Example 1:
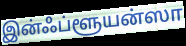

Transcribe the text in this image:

இன்ஃப்ளூயன்ஸா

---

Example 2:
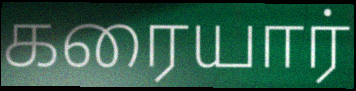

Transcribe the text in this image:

கரையார்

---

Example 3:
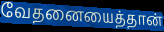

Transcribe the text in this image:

வேதனையைத்தான்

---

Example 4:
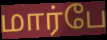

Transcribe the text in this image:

மார்பே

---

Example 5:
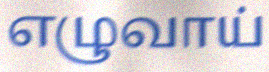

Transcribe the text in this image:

எழுவாய்